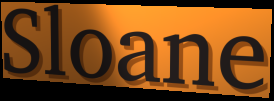
Sloane